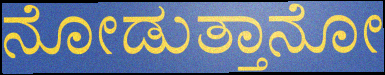
ನೋಡುತ್ತಾನೋ